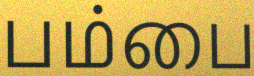
பம்பை